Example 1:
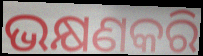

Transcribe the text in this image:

ଭକ୍ଷଣକରି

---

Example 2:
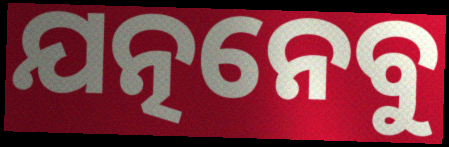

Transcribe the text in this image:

ଯତ୍ନନେବୁ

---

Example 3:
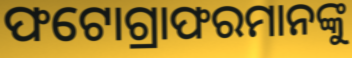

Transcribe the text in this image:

ଫଟୋଗ୍ରାଫରମାନଙ୍କୁ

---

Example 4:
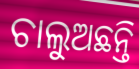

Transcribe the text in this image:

ଚାଲୁଅଛନ୍ତି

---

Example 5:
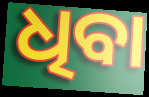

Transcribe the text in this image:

ଧିବା